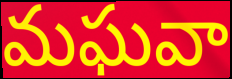
మఘవా